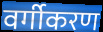
वर्गीकरण